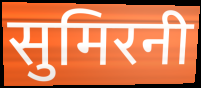
सुमिरनी